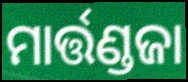
ମାର୍ତ୍ତଣ୍ଡଜା